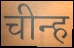
चीन्ह